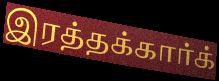
இரத்தக்கார்க்